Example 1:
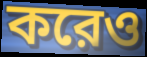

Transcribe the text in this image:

করেও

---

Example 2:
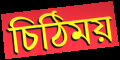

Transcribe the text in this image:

চিঠিময়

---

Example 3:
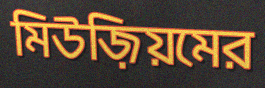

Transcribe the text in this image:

মিউজ়িয়মের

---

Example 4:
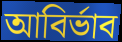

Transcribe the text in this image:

আবির্ভাব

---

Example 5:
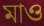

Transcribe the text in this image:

মাও